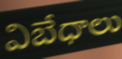
విబేధాలు